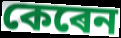
কেৰেন